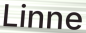
Linne